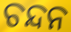
ଚନ୍ଦନ